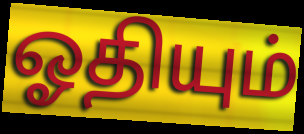
ஓதியும்